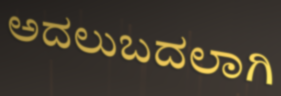
ಅದಲುಬದಲಾಗಿ